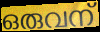
ഒരുവന്